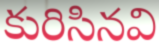
కురిసినవి